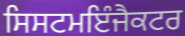
ਸਿਸਟਮਇੰਜੈਕਟਰ